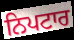
ਨਿਪਟਾਰ